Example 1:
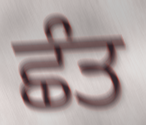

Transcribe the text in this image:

ਛੰਤ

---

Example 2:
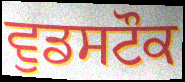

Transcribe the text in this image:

ਵੁਡਸਟੌਕ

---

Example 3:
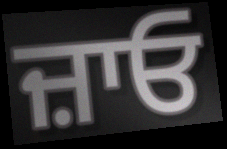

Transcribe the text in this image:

ਜ਼ਾਓ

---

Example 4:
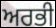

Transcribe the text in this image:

ਅਰਭੀ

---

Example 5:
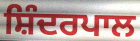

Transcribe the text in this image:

ਸ਼ਿੰਦਰਪਾਲ